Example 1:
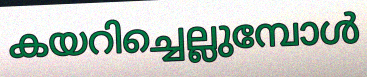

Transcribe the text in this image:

കയറിച്ചെല്ലുമ്പോൾ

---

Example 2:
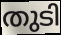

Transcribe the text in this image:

തുടി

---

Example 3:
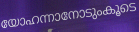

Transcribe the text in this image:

യോഹന്നാനോടുംകൂടെ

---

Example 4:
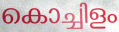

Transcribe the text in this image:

കൊച്ചിളം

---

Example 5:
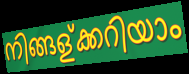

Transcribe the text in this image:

നിങ്ങള്ക്കറിയാം